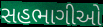
સહભાગીઓ